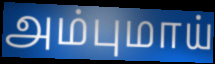
அம்புமாய்